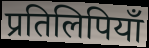
प्रतिलिपियाँ